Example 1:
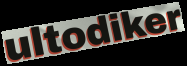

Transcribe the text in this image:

ultodiker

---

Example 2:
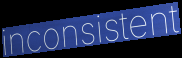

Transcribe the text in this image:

inconsistent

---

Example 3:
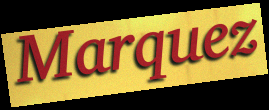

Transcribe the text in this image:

Marquez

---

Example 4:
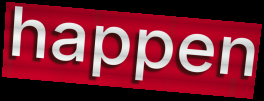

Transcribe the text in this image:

happen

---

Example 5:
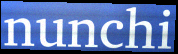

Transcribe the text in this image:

nunchi